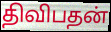
திவிபதன்